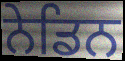
ਨੇਡਿਨ